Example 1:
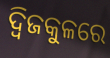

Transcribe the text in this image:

ଦ୍ୱିଜକୁଳରେ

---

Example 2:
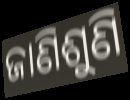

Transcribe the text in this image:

ଜାଣିଶୁଣି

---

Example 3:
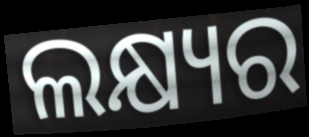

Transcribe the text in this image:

ଲକ୍ଷ୍ୟର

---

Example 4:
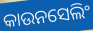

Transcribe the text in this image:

କାଉନସେଲିଂ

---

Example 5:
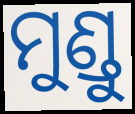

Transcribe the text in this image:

ମୁଣ୍ଡୁ